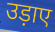
उड़ाए